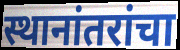
स्थानांतरांचा